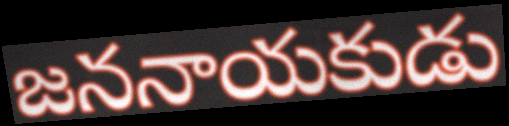
జననాయకుడు